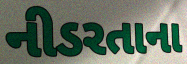
નીડરતાના